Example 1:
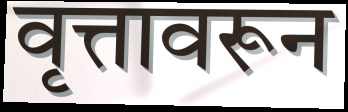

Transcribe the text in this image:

वृत्तावरून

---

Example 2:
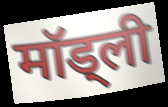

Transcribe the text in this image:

मॉड्ली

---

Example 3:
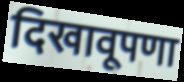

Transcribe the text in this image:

दिखावूपणा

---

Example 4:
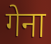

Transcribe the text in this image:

गेना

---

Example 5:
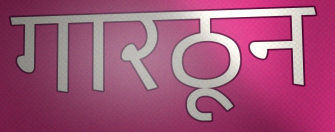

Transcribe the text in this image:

गारठून